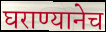
घराण्यानेच